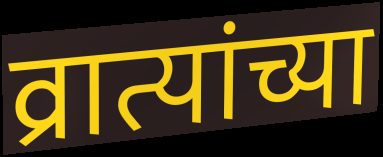
व्रात्यांच्या